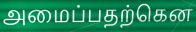
அமைப்பதற்கென